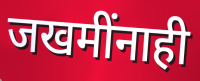
जखमींनाही